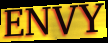
ENVY